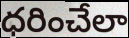
ధరించేలా